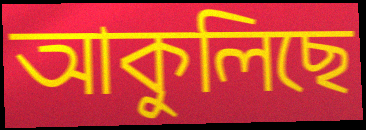
আকুলিছে